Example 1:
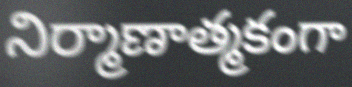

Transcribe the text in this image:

నిర్మాణాత్మకంగా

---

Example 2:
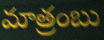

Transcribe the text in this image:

మాత్రంబు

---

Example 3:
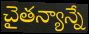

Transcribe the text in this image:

చైతన్యాన్నే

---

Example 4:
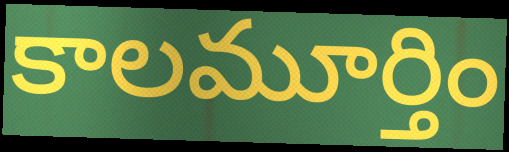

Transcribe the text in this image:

కాలమూర్తిం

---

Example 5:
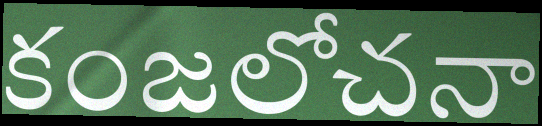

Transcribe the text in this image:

కంజలోచనా